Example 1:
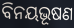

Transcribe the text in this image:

ବିନୟଭୂଷଣ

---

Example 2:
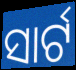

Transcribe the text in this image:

ସାର୍ଟ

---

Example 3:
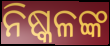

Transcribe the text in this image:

ନିଷ୍କଳଙ୍କ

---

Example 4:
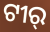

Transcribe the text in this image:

ଟୀର୍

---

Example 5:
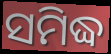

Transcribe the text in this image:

ସମିଦ୍ଧ